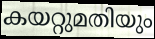
കയറ്റുമതിയും